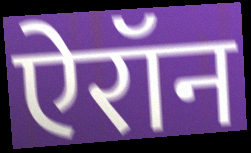
ऐरॉन